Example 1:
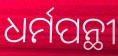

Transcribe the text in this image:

ଧର୍ମପନ୍ଥୀ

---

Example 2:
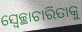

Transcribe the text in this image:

ସ୍ଵେଚ୍ଛାଚାରିତାକୁ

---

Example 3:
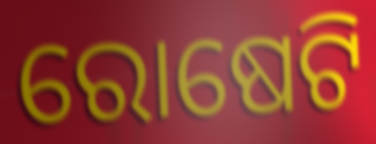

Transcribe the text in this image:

ରୋଷେଟି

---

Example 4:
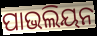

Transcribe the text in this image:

ପାଭଲିୟନ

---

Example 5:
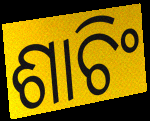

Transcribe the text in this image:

ଶାଚିଂ